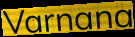
Varnana